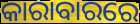
କାରାବାରରେ